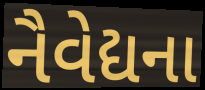
નૈવેદ્યના